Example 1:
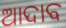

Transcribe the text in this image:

ଆଦାବ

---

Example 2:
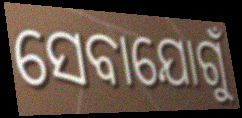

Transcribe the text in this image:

ସେବାଯୋଗୁଁ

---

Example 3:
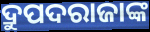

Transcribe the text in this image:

ଦ୍ରୁପଦରାଜାଙ୍କ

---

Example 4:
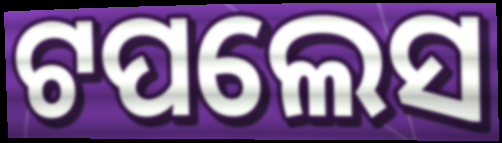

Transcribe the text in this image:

ଟପଲେସ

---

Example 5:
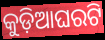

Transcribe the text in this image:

କୁଡ଼ିଆଘରଟି